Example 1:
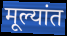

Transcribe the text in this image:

मूल्यांत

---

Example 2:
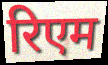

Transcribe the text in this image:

रिएम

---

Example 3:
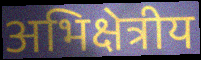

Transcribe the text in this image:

अभिक्षेत्रीय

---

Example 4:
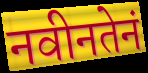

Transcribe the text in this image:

नवीनतेनं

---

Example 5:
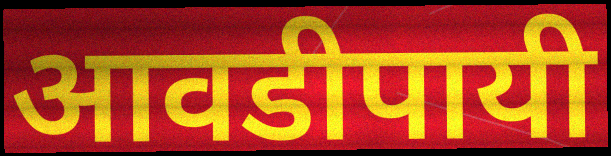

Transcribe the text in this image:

आवडीपायी